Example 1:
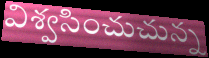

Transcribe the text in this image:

విశ్వసించుచున్న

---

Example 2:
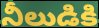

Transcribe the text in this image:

నీలుడికి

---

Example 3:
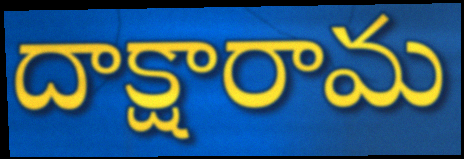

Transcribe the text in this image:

దాక్షారామ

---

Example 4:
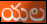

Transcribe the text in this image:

యల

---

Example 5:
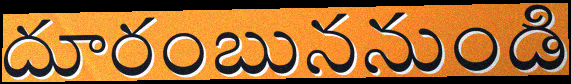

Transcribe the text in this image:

దూరంబుననుండి